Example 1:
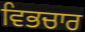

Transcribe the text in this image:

ਵਿਭਚਾਰ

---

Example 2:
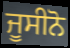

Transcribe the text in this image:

ਜੂਸੀਨੋ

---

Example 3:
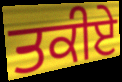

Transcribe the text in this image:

ਤਕੀਏ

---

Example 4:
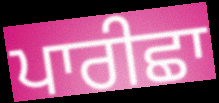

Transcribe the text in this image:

ਪਾਰੀਛਾ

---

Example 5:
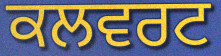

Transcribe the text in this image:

ਕਲਵਰਟ